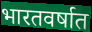
भारतवर्षात